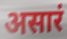
असारं